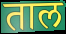
ताल